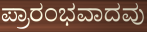
ಪ್ರಾರಂಭವಾದವು